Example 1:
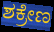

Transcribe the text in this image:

ಶಕ್ರೇಣ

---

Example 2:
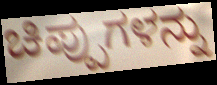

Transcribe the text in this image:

ಚಿಪ್ಪುಗಳನ್ನು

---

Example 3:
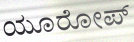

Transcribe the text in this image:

ಯೂರೋಪ್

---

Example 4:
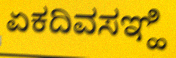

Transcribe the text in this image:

ಏಕದಿವಸಞ್ಹಿ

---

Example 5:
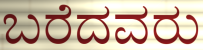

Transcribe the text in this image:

ಬರೆದವರು